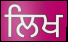
ਲਿਖ